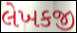
લેખકજી